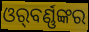
ଓର୍‌ବର୍ଣ୍ଣଙ୍କର